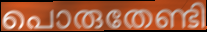
പൊരുതേണ്ടി